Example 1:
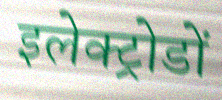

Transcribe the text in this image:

इलेक्ट्रोडों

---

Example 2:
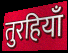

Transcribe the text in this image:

तुरहियाँ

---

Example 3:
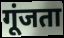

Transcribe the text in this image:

गूंजता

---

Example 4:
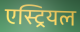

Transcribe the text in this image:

एस्ट्रियल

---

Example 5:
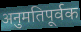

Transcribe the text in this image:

अनुमतिपूर्वक